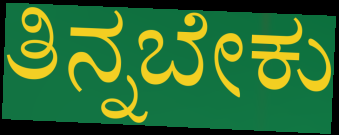
ತಿನ್ನಬೇಕು